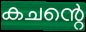
കചന്റെ